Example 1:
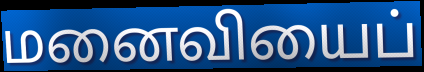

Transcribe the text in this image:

மனைவியைப்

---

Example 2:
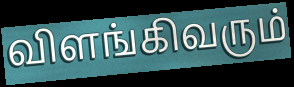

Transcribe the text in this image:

விளங்கிவரும்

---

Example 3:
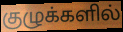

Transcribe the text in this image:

குழுக்களில்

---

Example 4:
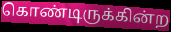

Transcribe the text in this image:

கொண்டிருக்கின்ற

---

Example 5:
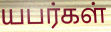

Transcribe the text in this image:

யபர்கள்